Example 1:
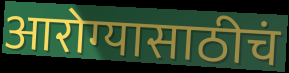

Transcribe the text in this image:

आरोग्यासाठीचं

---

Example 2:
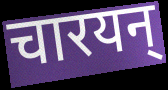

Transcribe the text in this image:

चारयन्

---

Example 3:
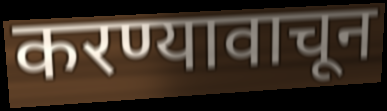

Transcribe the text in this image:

करण्यावाचून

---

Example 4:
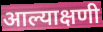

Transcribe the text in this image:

आल्याक्षणी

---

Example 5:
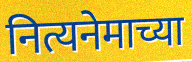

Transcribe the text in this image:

नित्यनेमाच्या